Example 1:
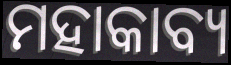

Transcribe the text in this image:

ମହାକାବ୍ୟ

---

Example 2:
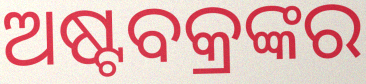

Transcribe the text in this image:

ଅଷ୍ଟବକ୍ରଙ୍କର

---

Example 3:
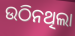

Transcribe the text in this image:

ଉଠିନଥିଲା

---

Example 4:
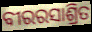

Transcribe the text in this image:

ବୀରରସାଶ୍ରିତ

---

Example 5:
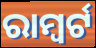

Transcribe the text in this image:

ରାମ୍ବର୍ଟ